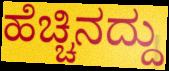
ಹೆಚ್ಚಿನದ್ದು